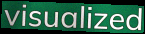
visualized